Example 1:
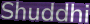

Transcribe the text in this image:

Shuddhi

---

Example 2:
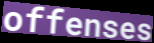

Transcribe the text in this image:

offenses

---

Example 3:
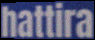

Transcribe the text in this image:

hattira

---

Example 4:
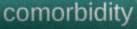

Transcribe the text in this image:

comorbidity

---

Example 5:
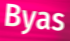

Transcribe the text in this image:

Byas